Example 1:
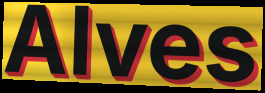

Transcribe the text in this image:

Alves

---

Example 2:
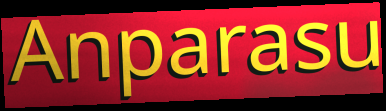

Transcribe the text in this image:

Anparasu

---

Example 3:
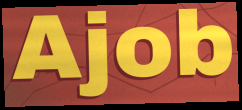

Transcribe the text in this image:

Ajob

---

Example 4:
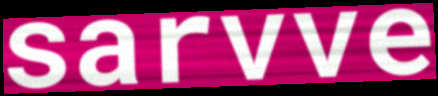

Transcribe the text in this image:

sarvve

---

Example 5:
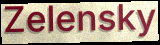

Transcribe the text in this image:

Zelensky